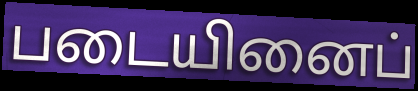
படையினைப்